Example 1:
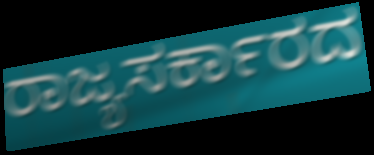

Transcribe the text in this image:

ರಾಜ್ಯಸರ್ಕಾರದ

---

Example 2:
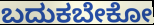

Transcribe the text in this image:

ಬದುಕಬೇಕೋ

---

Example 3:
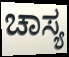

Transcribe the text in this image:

ಚಾಸ್ಯ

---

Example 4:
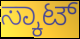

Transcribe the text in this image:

ಸ್ಕಾಟ್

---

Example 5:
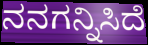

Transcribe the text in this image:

ನನಗನ್ನಿಸಿದೆ